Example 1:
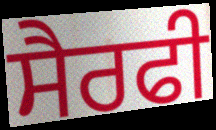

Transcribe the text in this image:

ਸੈਰਫੀ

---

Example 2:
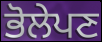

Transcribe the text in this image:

ਭੋਲੇਪਣ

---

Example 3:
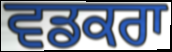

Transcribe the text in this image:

ਵਡਕਰਾ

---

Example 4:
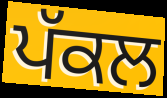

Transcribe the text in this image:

ਪੱਕਲ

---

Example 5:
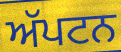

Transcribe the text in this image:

ਅੱਪਟਨ